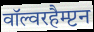
वॉल्वरहैम्प्टन